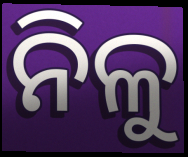
ନିଳୁ